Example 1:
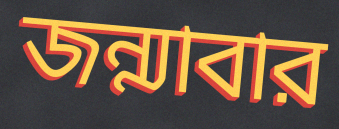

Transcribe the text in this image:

জন্মাবার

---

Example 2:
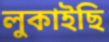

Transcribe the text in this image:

লুকাইছি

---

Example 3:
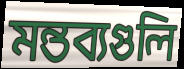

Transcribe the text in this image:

মন্তব্যগুলি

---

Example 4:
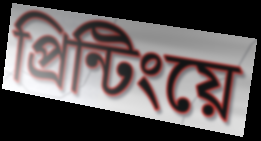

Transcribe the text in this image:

প্রিন্টিংয়ে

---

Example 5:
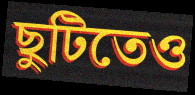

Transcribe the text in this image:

ছুটিতেও